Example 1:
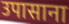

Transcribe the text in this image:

उपासाना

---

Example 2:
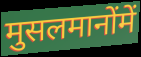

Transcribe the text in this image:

मुसलमानोंमें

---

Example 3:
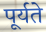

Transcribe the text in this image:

पूर्यते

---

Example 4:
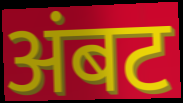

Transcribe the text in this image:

अंबट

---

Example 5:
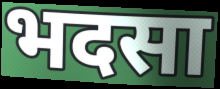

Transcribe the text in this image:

भदसा